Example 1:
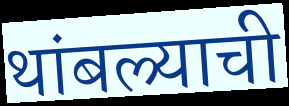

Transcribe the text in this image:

थांबल्याची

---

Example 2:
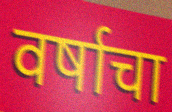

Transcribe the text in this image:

वर्षाचा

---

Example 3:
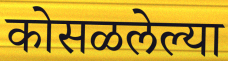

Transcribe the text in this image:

कोसळलेल्या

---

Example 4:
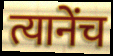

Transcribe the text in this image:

त्यानेंच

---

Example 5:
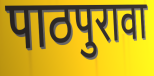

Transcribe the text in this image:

पाठपुरावा